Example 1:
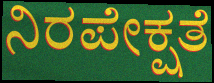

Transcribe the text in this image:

ನಿರಪೇಕ್ಷತೆ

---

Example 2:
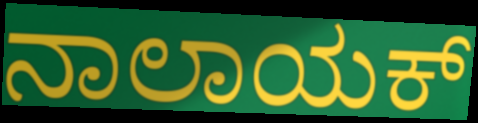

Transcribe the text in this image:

ನಾಲಾಯಕ್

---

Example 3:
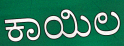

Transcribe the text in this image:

ಕಾಯಿಲ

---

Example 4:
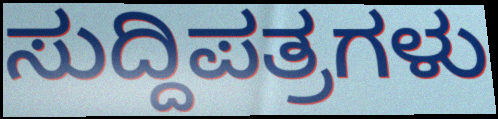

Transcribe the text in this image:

ಸುದ್ದಿಪತ್ರಗಳು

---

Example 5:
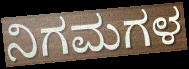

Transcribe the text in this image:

ನಿಗಮಗಳ